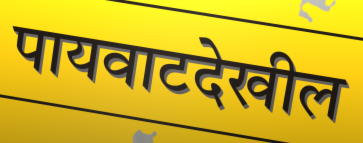
पायवाटदेखील